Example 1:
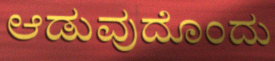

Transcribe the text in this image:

ಆಡುವುದೊಂದು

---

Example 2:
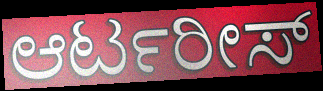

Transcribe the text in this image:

ಆರ್ಟರೀಸ್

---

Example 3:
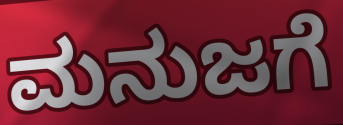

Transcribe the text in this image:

ಮನುಜಗೆ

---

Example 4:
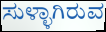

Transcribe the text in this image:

ಸುಳ್ಳಾಗಿರುವ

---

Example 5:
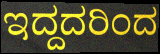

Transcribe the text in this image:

ಇದ್ದದರಿಂದ